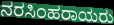
ನರಸಿಂಹರಾಯರು